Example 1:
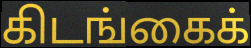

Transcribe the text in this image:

கிடங்கைக்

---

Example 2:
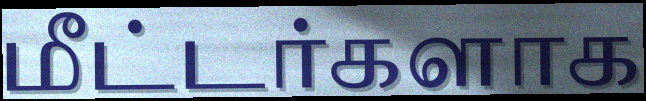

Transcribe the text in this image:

மீட்டர்களாக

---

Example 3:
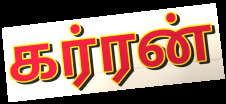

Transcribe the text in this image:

கர்ரன்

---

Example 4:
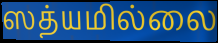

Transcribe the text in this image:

ஸத்யமில்லை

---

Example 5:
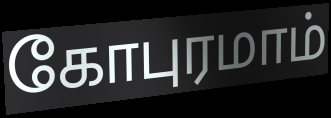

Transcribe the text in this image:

கோபுரமாம்